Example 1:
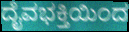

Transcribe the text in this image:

ದೈವಭಕ್ತಿಯಿಂದ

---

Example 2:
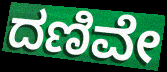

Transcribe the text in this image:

ದಣಿವೇ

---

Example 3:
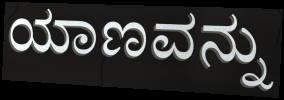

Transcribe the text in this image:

ಯಾಣವನ್ನು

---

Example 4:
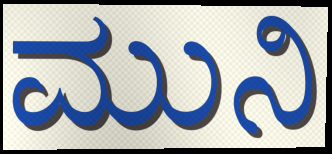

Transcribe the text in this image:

ಮುನಿ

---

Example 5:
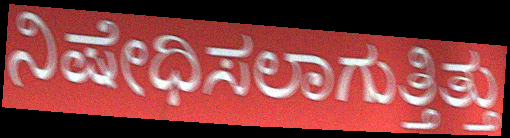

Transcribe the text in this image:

ನಿಷೇಧಿಸಲಾಗುತ್ತಿತ್ತು